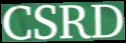
CSRD